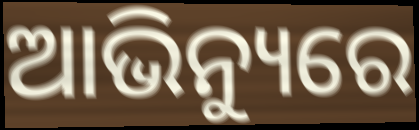
ଆଭିନ୍ୟୁରେ